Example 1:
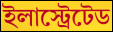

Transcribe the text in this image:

ইলাস্ট্রেটেড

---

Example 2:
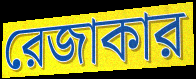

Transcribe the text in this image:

রেজাকার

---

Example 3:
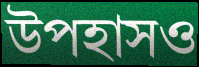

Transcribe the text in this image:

উপহাসও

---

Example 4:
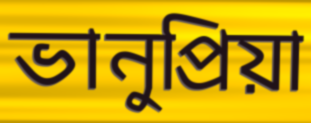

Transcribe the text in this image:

ভানুপ্রিয়া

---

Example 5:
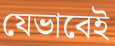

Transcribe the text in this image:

যেভাবেই